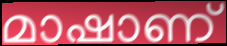
മാഷാണ്